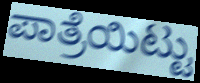
ಪಾತ್ರೆಯಿಟ್ಟು